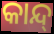
କାନ୍ଦ୍